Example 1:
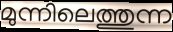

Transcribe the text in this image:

മുന്നിലെത്തുന്ന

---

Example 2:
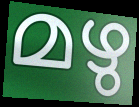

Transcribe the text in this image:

മഴു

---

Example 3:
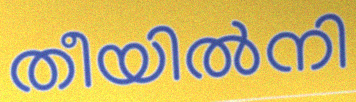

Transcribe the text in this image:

തീയിൽനി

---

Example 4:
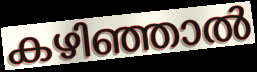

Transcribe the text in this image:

കഴിഞ്ഞാൽ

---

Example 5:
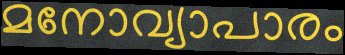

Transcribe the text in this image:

മനോവ്യാപാരം